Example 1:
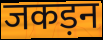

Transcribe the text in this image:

जकड़न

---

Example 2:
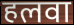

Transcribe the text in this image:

हलवा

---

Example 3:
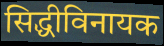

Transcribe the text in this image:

सिद्धीविनायक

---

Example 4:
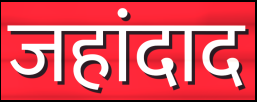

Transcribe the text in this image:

जहांदाद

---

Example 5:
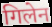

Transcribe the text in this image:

गिलेन